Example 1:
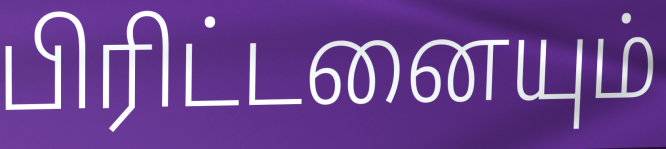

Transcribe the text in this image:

பிரிட்டனையும்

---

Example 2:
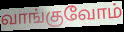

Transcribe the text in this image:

வாங்குவோம்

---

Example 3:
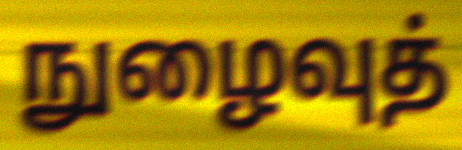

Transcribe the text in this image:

நுழைவுத்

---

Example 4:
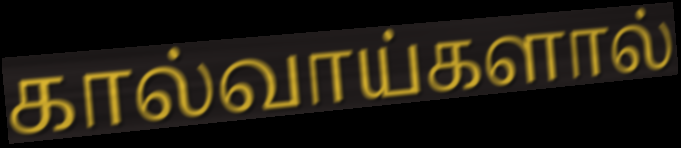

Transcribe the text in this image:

கால்வாய்களால்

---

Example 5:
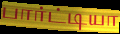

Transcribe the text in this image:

பார்ட்டியா